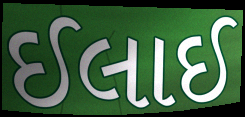
ઈલાઈ